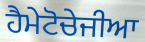
ਹੈਮੇਟੋਚੇਜੀਆ